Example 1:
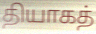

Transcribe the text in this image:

தியாகத்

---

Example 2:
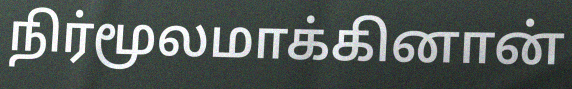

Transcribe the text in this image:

நிர்மூலமாக்கினான்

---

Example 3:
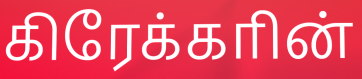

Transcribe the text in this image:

கிரேக்கரின்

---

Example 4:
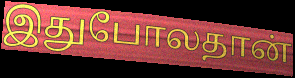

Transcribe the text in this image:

இதுபோலதான்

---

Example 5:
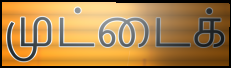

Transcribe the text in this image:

முட்டைக்